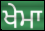
ਖੇਮਾ